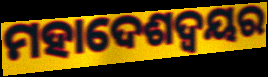
ମହାଦେଶଦ୍ଵୟର